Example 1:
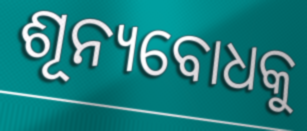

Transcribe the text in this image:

ଶୂନ୍ୟବୋଧକୁ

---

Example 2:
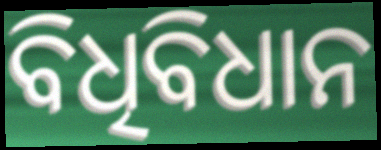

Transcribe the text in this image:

ବିଧିବିଧାନ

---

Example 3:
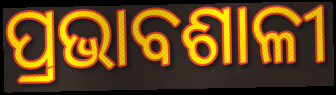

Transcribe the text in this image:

ପ୍ରଭାବଶାଳୀ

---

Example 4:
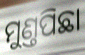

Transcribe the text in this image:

ମୁଣ୍ତପିଛା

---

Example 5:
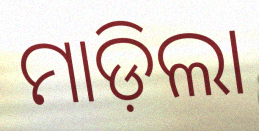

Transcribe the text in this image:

ମାଡ଼ିଲା